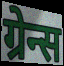
ग्रेन्स